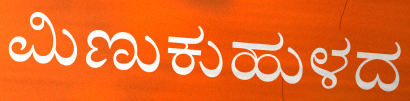
ಮಿಣುಕುಹುಳದ